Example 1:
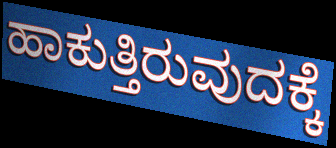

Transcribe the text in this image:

ಹಾಕುತ್ತಿರುವುದಕ್ಕೆ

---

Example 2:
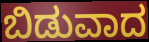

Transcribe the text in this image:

ಬಿಡುವಾದ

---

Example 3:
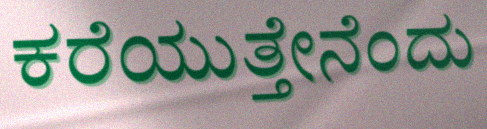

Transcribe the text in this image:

ಕರೆಯುತ್ತೇನೆಂದು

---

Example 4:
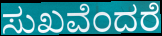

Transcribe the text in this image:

ಸುಖವೆಂದರೆ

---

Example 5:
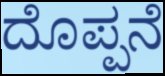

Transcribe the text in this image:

ದೊಪ್ಪನೆ